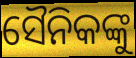
ସୈନିକଙ୍କୁ